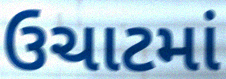
ઉચાટમાં